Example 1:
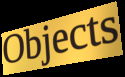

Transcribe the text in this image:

Objects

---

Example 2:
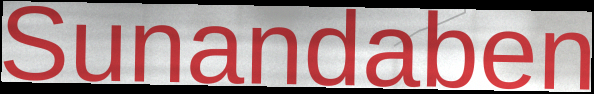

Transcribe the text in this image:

Sunandaben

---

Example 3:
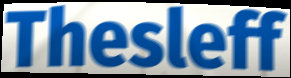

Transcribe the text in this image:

Thesleff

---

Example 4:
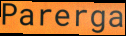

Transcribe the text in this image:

Parerga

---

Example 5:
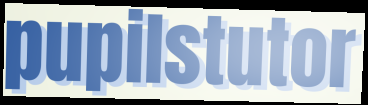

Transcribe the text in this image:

pupilstutor